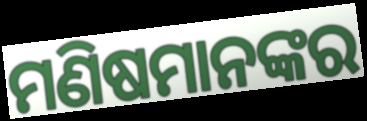
ମଣିଷମାନଙ୍କର